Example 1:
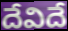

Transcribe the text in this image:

దేవిదే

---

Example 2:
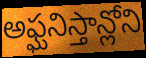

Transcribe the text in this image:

అఫ్ఘనిస్తాన్లోని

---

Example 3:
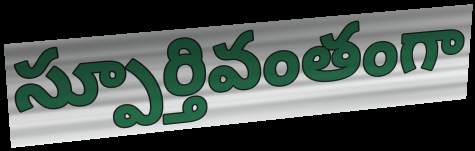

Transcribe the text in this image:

స్పూర్తివంతంగా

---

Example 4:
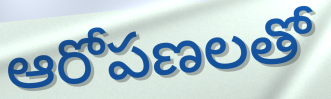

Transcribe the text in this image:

ఆరోపణలతో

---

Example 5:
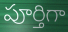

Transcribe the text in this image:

పూర్తిగా